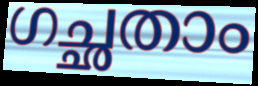
ഗച്ഛതാം